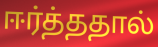
ஈர்த்ததால்